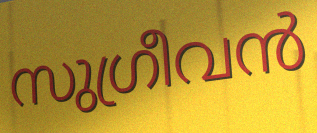
സുഗ്രീവൻ